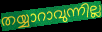
തയ്യാറാവുന്നില്ല